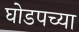
घोडपच्या